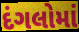
દંગલોમાં